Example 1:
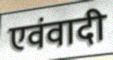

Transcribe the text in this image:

एवंवादी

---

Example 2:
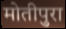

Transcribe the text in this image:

मोतीपुरा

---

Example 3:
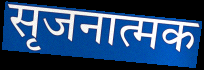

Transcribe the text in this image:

सृजनात्मक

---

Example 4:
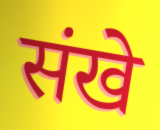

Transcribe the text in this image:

संखे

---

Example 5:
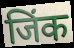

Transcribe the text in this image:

जिंक